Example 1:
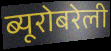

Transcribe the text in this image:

ब्यूरोबरेली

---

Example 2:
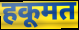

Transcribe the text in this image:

हकूमत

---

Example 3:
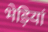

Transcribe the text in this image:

भेड़ियां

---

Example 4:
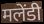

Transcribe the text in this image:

मलेंडी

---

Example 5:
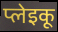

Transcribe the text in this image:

प्लेइकू